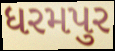
ધરમપુર